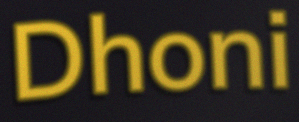
Dhoni